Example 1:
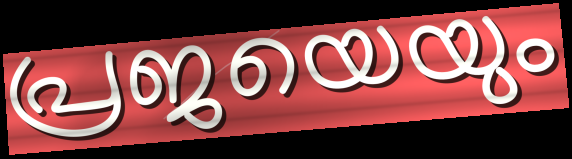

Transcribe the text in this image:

പ്രജയെയും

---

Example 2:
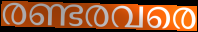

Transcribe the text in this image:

രണ്ടരവരെ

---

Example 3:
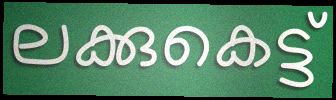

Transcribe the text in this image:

ലക്കുകെട്ട്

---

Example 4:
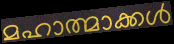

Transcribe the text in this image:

മഹാത്മാക്കൾ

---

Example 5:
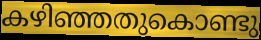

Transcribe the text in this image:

കഴിഞ്ഞതുകൊണ്ടു